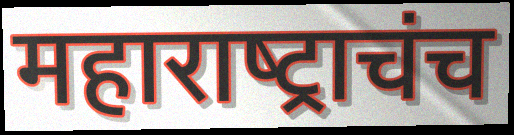
महाराष्ट्राचंच